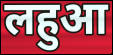
लहुआ